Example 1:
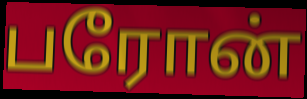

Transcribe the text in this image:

பரோன்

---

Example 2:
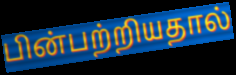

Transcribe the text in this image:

பின்பற்றியதால்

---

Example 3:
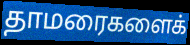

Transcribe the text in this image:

தாமரைகளைக்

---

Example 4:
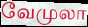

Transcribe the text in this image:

வேமுலா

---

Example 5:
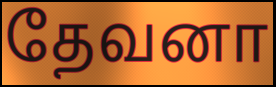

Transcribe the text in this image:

தேவனா